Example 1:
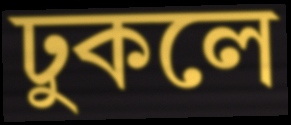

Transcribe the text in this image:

ঢুকলে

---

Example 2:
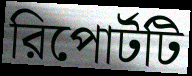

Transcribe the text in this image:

রিপোর্টটি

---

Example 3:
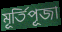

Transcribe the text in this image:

মূর্তিপূজা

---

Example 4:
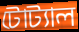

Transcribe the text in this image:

টোট্যাল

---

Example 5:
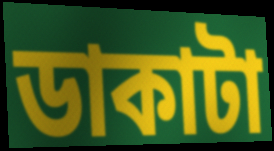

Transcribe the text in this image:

ডাকাটা